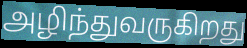
அழிந்துவருகிறது